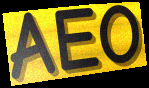
AEO